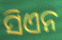
ସିଏନ